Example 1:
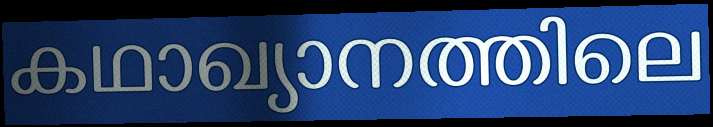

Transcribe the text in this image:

കഥാഖ്യാനത്തിലെ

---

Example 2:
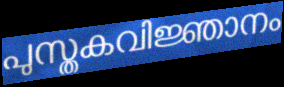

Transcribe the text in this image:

പുസ്തകവിജ്ഞാനം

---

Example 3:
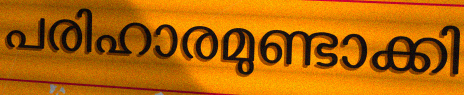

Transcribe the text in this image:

പരിഹാരമുണ്ടാക്കി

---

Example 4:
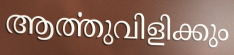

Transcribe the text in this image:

ആൎത്തുവിളിക്കും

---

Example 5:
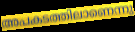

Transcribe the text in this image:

അപകടത്തിലാണെന്നു